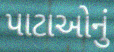
પાટાઓનું